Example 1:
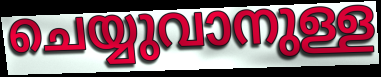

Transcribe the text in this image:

ചെയ്യുവാനുള്ള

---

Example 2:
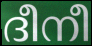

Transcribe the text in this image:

ദീനീ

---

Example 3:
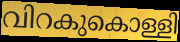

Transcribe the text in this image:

വിറകുകൊള്ളി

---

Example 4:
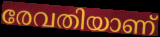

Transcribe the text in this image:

രേവതിയാണ്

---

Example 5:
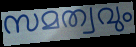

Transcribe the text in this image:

സമത്വവും